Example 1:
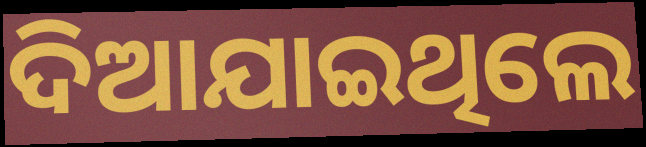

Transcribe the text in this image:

ଦିଆଯାଇଥିଲେ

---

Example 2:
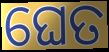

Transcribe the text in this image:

ଘେତ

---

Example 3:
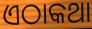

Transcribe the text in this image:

ଏଠାକଥା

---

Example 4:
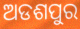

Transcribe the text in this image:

ଅଡଶପୁର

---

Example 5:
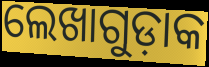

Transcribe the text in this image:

ଲେଖାଗୁଡ଼ାକ